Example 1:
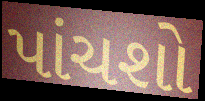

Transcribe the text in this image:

પાંચશો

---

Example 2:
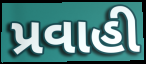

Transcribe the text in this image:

પ્રવાહી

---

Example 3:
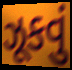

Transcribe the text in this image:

ઝૂકવું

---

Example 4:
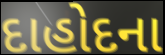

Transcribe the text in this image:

દાહોદના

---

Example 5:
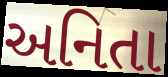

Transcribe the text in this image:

અનિતા